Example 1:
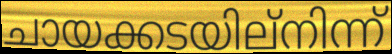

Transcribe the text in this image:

ചായക്കടയില്നിന്ന്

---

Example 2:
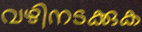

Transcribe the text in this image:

വഴിനടക്കുക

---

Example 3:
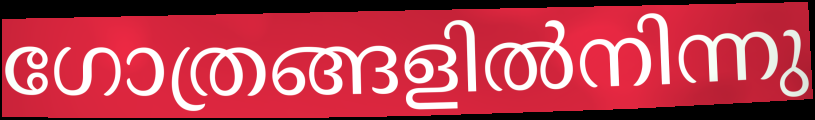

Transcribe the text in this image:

ഗോത്രങ്ങളിൽനിന്നു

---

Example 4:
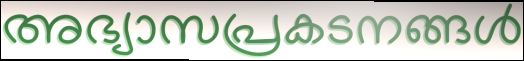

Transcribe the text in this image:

അഭ്യാസപ്രകടനങ്ങൾ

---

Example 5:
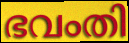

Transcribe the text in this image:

ഭവംതി